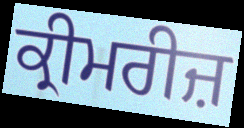
ਕ੍ਰੀਮਰੀਜ਼